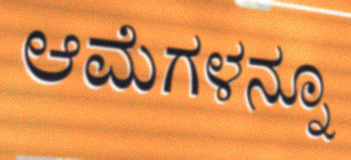
ಆಮೆಗಳನ್ನೂ